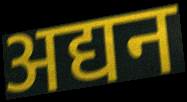
अद्यन